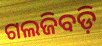
ଗଲଜିବଡ଼ି